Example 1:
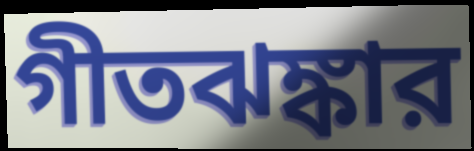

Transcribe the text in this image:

গীতঝঙ্কার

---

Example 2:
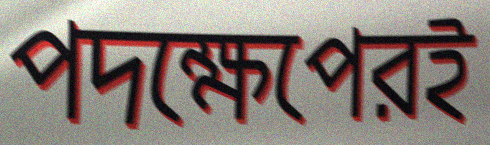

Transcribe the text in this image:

পদক্ষেপেরই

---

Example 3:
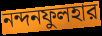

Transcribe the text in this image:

নন্দনফুলহার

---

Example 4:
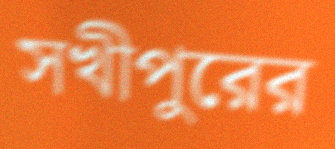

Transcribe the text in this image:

সখীপুরের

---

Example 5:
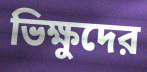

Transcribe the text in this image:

ভিক্ষুদের